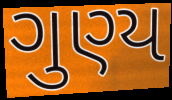
ગુણ્ય